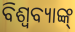
ବିଶ୍ଵବ୍ୟାଙ୍କ୍